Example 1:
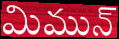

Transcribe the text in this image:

మిమున్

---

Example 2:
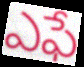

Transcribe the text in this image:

ఎఫే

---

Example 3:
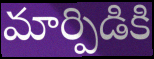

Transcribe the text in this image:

మార్పిడికి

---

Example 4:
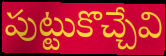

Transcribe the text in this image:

పుట్టుకొచ్చేవి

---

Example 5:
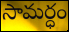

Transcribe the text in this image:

సామర్ధం